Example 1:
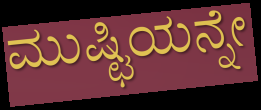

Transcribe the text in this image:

ಮುಷ್ಟಿಯನ್ನೇ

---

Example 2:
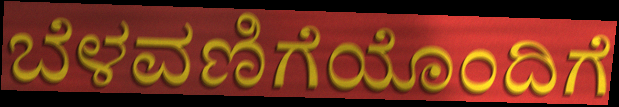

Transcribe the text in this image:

ಬೆಳವಣಿಗೆಯೊಂದಿಗೆ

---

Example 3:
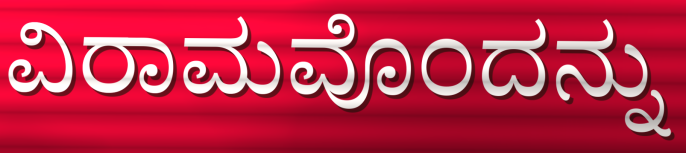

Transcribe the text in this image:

ವಿರಾಮವೊಂದನ್ನು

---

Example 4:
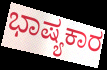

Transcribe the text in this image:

ಭಾಷ್ಯಕಾರ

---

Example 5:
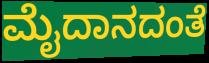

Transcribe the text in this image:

ಮೈದಾನದಂತೆ